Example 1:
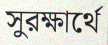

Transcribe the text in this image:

সুরক্ষার্থে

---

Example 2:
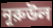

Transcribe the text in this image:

নূরুউল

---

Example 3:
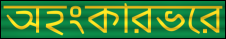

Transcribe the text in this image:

অহংকারভরে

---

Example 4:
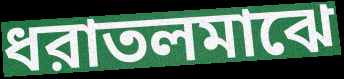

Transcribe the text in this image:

ধরাতলমাঝে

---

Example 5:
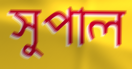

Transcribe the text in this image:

সুপাল